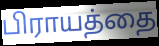
பிராயத்தை